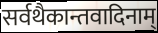
सर्वथैकान्तवादिनाम्